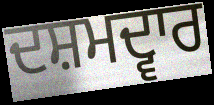
ਦਸ਼ਮਦ੍ਵਾਰ